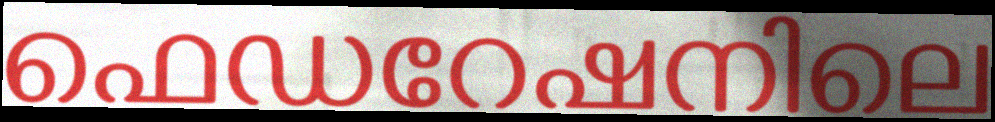
ഫെഡറേഷനിലെ